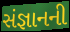
સંજ્ઞાનની